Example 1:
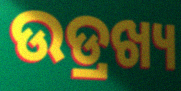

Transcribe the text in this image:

ଉଡ୍ରଖ୍ୟ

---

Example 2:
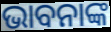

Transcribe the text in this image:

ଭାବନାଙ୍କ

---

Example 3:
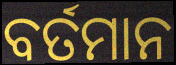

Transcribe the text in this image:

ବର୍ତମାନ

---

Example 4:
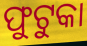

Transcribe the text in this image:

ଫୁଟୁକା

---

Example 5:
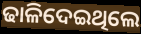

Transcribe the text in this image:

ଢାଳିଦେଇଥିଲେ